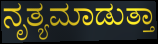
ನೃತ್ಯಮಾಡುತ್ತಾ